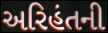
અરિહંતની